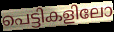
പെട്ടികളിലോ